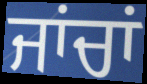
ਜਾਂਚਾਂ